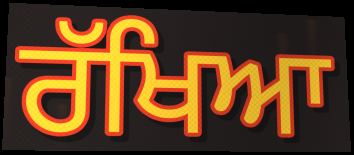
ਰੱਖਿਆ